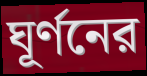
ঘূর্ণনের